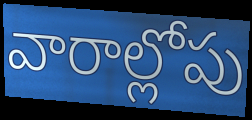
వారాల్లోపు